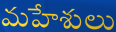
మహేశులు